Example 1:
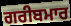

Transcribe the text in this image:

ਗਰੀਬਮਾਰ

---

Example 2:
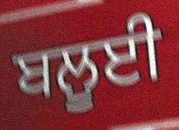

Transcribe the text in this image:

ਬਲੂਈ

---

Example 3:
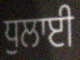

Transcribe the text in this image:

ਧੁਲਾਈ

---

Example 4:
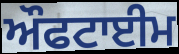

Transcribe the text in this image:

ਔਫਟਾਈਮ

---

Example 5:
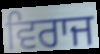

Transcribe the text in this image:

ਵਿਰਾਜ